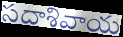
సదాశివాయ